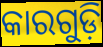
କାରଗୁଡ଼ି